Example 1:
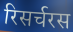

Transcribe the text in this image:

रिसर्चरस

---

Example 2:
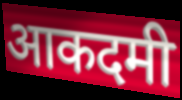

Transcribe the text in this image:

आकदमी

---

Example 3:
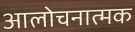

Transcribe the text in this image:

आलोचनात्मक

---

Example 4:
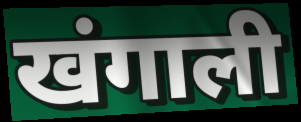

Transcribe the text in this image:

खंगाली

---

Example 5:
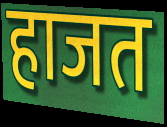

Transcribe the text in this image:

हाजत